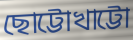
ছোট্টোখাট্টো